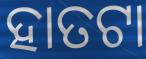
ହାତଟା